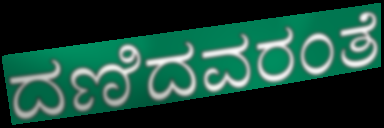
ದಣಿದವರಂತೆ